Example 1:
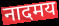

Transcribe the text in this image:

नादमय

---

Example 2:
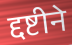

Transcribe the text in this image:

द्दष्टीने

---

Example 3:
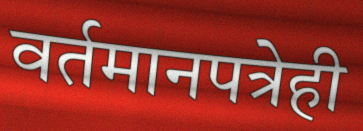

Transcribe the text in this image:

वर्तमानपत्रेही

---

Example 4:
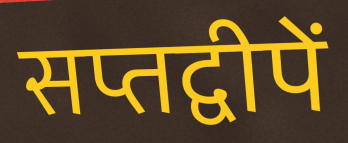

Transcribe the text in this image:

सप्तद्वीपें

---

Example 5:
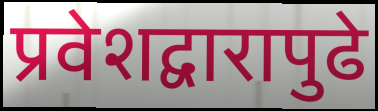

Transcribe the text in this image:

प्रवेशद्वारापुढे